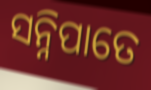
ସନ୍ନିପାତେ